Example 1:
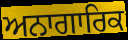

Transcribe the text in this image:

ਅਨਾਗਾਰਿਕ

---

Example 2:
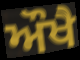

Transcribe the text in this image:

ਔਖੈ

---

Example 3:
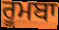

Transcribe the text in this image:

ਰੂਮਬਾ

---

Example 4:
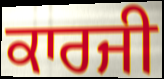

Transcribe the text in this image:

ਕਾਰਜੀ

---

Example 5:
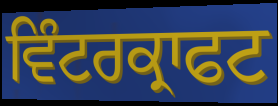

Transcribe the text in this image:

ਵਿੰਟਰਕ੍ਰਾਫਟ